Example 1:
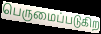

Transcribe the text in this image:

பெருமைப்படுகிற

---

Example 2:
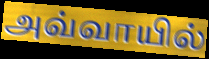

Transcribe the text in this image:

அவ்வாயில்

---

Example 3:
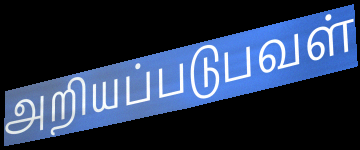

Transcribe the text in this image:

அறியப்படுபவள்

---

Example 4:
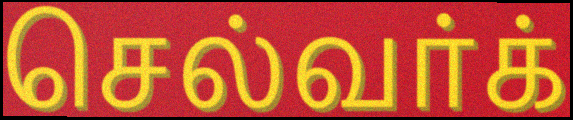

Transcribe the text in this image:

செல்வர்க்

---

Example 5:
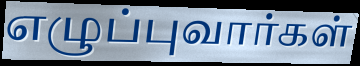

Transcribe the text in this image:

எழுப்புவார்கள்